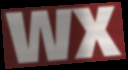
wx